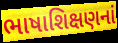
ભાષાશિક્ષણનાં